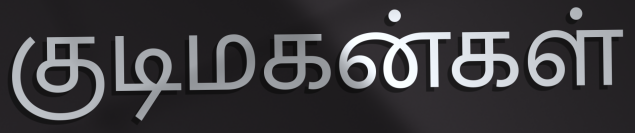
குடிமகன்கள்